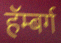
हॅम्बर्ग